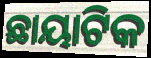
ଛାୟାଟିକ